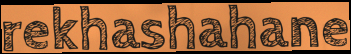
rekhashahane